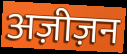
अज़ीज़न